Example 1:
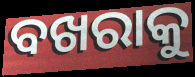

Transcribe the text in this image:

ବଖରାକୁ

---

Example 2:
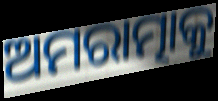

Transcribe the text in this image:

ଅମରାତ୍ମାକୁ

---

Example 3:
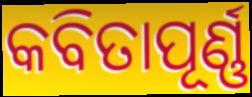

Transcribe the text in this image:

କବିତାପୂର୍ଣ୍ଣ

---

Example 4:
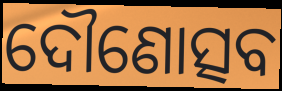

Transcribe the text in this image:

ଦୌଣୋତ୍ସବ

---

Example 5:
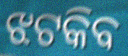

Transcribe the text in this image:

ଝଟକିବ